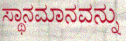
ಸ್ಥಾನಮಾನವನ್ನು